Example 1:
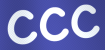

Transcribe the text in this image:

ccc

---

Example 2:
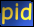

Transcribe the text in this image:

pid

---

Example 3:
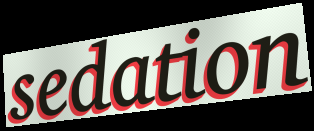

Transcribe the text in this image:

sedation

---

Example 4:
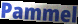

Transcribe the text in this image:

Pammel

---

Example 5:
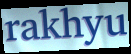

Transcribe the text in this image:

rakhyu